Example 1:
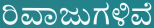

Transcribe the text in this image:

ರಿವಾಜುಗಳಿವೆ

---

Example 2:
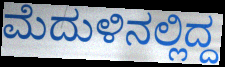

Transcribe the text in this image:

ಮೆದುಳಿನಲ್ಲಿದ್ದ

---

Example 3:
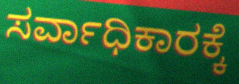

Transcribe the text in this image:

ಸರ್ವಾಧಿಕಾರಕ್ಕೆ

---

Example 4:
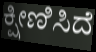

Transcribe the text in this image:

ಕ್ಷೀಣಿಸಿದೆ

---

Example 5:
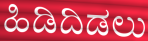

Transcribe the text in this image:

ಹಿಡಿದಿಡಲು